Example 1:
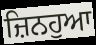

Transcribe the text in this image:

ਜ਼ਿਨਹੁਆ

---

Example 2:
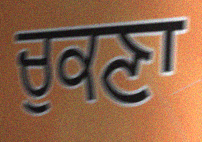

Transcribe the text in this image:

ਚੁਕਣਾ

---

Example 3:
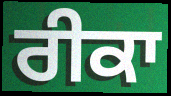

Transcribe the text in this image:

ਰੀਕਾ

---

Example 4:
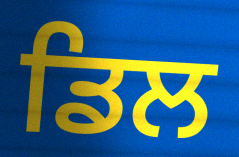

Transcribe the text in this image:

ਡਿਲ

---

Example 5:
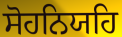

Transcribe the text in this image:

ਸੋਹਨਿਯਹਿ